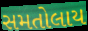
સમતોલાય